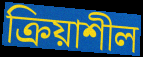
ক্ৰিয়াশীল